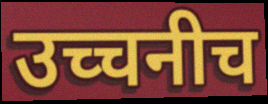
उच्चनीच